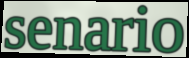
senario